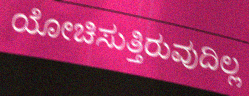
ಯೋಚಿಸುತ್ತಿರುವುದಿಲ್ಲ